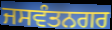
ਜਸਵੰਤਨਗਰ